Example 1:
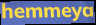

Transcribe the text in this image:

hemmeya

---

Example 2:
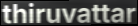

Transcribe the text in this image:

thiruvattar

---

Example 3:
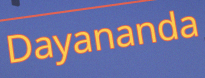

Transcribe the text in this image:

Dayananda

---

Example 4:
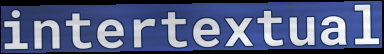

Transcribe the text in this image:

intertextual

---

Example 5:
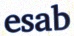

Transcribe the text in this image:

esab